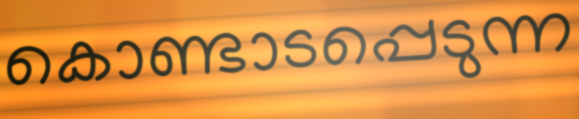
കൊണ്ടാടപ്പെടുന്ന